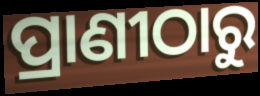
ପ୍ରାଣୀଠାରୁ